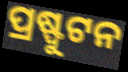
ପ୍ରଷ୍ଫୁଟନ